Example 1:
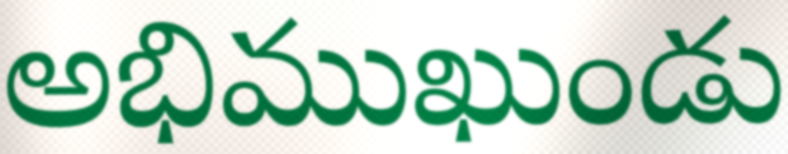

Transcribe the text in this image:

అభిముఖుండు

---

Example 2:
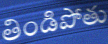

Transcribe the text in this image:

తిండిపోతు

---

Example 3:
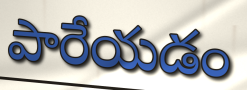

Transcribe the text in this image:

పారేయడం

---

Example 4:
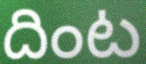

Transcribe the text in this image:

దింట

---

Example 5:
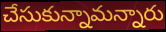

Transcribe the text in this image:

చేసుకున్నామన్నారు